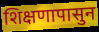
शिक्षणापासुन